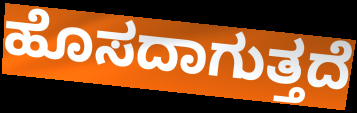
ಹೊಸದಾಗುತ್ತದೆ